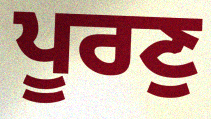
ਪੂਰਣੁ